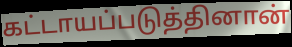
கட்டாயப்படுத்தினான்